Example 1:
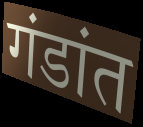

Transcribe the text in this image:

गंडांत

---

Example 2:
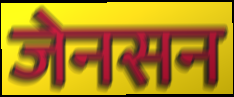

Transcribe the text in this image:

जेनसन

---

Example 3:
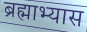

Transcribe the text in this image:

ब्रह्माभ्यास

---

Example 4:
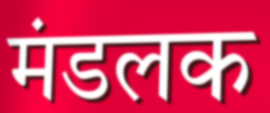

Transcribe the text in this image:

मंडलक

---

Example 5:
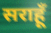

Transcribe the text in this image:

सराहूँ